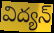
విద్యన్